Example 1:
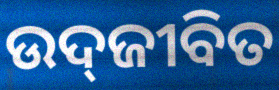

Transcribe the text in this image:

ଉଦ୍‍ଜୀବିତ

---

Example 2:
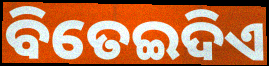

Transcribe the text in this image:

ବିତେଇଦିଏ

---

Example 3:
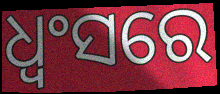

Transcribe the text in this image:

ଧ୍ଵଂସରେ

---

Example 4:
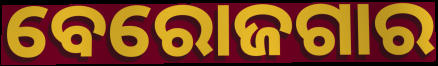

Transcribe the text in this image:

ବେରୋଜଗାର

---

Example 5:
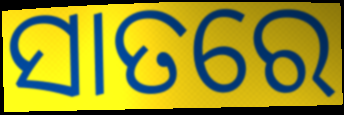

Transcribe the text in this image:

ସାତରେ